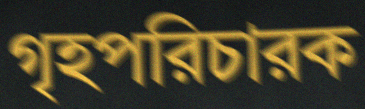
গৃহপরিচারক